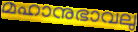
മഹാനുഭാവലു